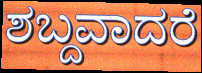
ಶಬ್ದವಾದರೆ